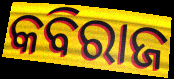
କବିରାଜ